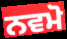
ਨਵਮੋ